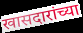
खासदारांच्या